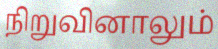
நிறுவினாலும்